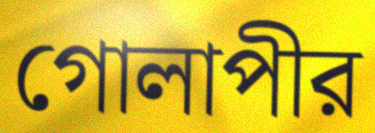
গোলাপীর